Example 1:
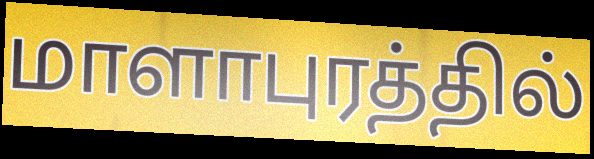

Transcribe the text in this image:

மாளாபுரத்தில்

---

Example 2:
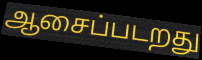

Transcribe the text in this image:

ஆசைப்படறது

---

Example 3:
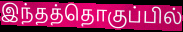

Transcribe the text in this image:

இந்தத்தொகுப்பில்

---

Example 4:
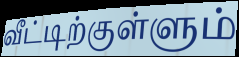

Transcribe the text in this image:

வீட்டிற்குள்ளும்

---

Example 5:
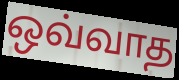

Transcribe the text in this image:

ஒவ்வாத